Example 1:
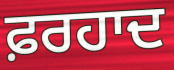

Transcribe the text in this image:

ਫ਼ਰਹਾਦ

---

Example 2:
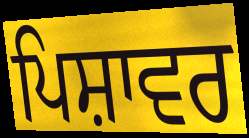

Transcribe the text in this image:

ਪਿਸ਼ਾਵਰ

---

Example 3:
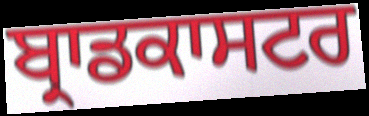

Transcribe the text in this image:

ਬ੍ਰਾਡਕਾਸਟਰ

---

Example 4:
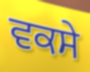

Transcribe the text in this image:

ਵਕਸੇ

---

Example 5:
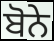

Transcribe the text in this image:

ਬੋਨੇ